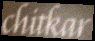
chitkar